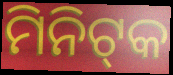
ମିନିଟ୍‍କ